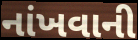
નાંખવાની